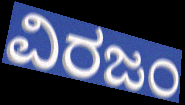
ವಿರಜಂ